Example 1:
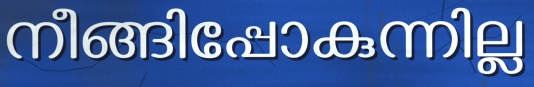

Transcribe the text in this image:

നീങ്ങിപ്പോകുന്നില്ല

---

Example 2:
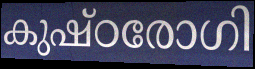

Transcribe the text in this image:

കുഷ്ഠരോഗി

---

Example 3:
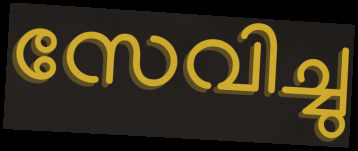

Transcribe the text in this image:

സേവിച്ചു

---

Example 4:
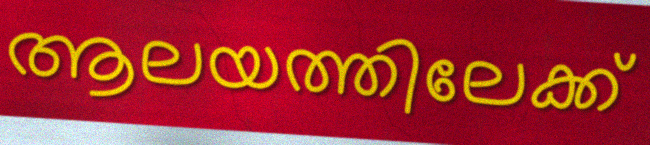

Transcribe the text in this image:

ആലയത്തിലേക്ക്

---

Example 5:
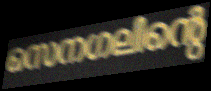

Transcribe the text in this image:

സെനഗലിന്റെ